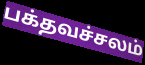
பக்தவச்சலம்